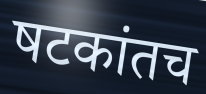
षटकांतच